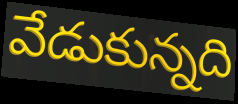
వేడుకున్నది